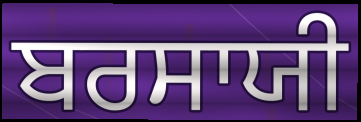
ਬਰਸਾਯੀ